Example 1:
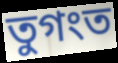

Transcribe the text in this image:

তুগংত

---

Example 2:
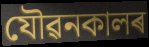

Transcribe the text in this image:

যৌৱনকালৰ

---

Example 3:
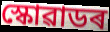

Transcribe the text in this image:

স্কোৱাডৰ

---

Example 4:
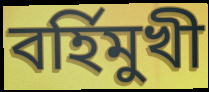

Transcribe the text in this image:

বৰ্হিমুখী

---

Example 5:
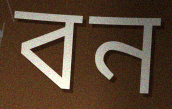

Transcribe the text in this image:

বন